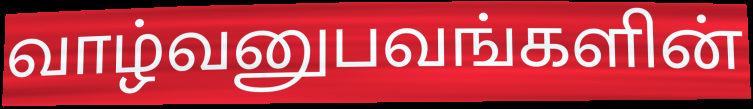
வாழ்வனுபவங்களின்